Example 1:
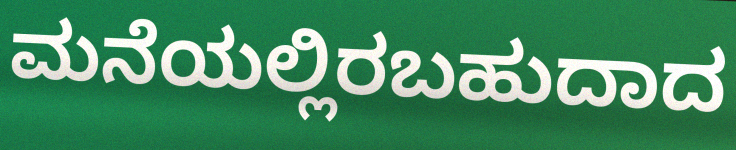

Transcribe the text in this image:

ಮನೆಯಲ್ಲಿರಬಹುದಾದ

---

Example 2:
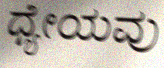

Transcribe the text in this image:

ಧ್ಯೇಯವು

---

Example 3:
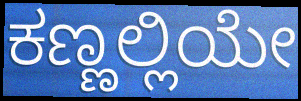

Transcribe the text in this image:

ಕಣ್ಣಲ್ಲಿಯೇ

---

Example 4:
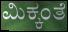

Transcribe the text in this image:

ಮಿಕ್ಕಂತೆ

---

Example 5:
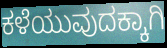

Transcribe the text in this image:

ಕಳೆಯುವುದಕ್ಕಾಗಿ